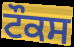
ਟੌਕਸ